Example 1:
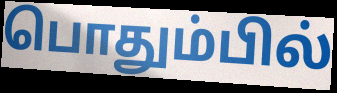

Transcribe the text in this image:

பொதும்பில்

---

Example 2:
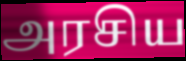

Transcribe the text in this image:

அரசிய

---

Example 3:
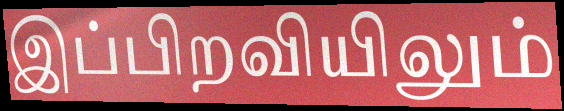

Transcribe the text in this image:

இப்பிறவியிலும்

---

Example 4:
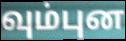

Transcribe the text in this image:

வும்புன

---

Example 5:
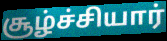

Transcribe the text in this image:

சூழ்ச்சியார்